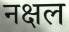
नक्षल